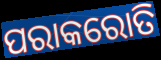
ପରାକରୋତି